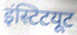
इंस्टिटयूट